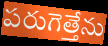
పరుగెత్తేను